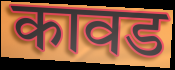
कावड